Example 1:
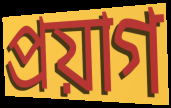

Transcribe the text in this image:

প্রয়াগ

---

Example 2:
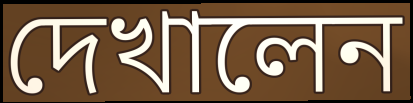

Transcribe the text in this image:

দেখালেন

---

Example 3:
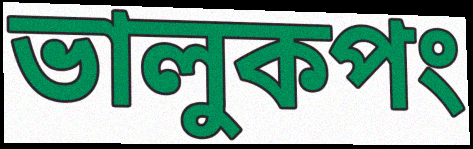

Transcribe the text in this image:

ভালুকপং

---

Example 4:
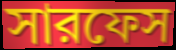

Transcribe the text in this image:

সারফেস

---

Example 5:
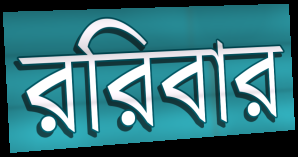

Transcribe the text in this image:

ররিবার